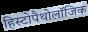
हिस्टोपैथोलॉजिक